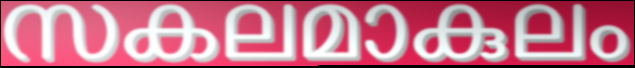
സകലമാകുലം